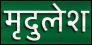
मृदुलेश